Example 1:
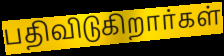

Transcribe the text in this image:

பதிவிடுகிறார்கள்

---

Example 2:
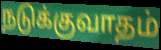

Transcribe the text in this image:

நடுக்குவாதம்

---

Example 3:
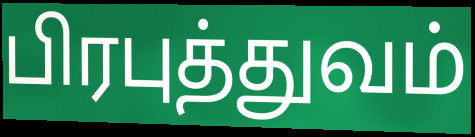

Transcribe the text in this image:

பிரபுத்துவம்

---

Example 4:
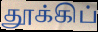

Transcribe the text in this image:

தூக்கிப்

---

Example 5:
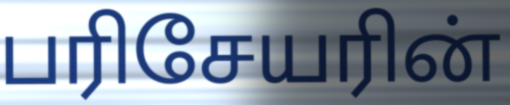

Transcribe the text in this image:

பரிசேயரின்